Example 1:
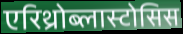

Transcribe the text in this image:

एरिथ्रोब्लास्टोसिस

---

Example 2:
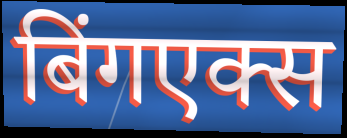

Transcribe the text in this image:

बिंगएक्स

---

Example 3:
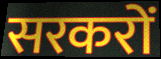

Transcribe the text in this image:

सरकरों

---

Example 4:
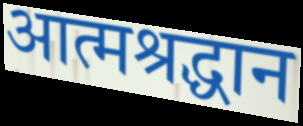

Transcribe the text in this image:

आत्मश्रद्धान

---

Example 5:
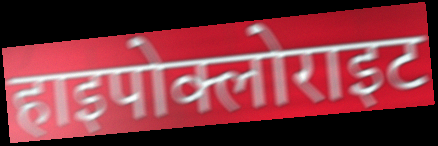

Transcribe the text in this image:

हाइपोक्लोराइट